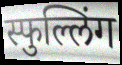
स्फुल्लिंग